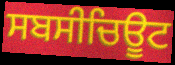
ਸਬਸੀਚਿਊਟ